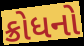
ક્રોધનો